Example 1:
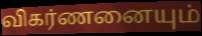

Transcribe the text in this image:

விகர்ணனையும்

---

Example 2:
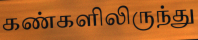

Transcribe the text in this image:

கண்களிலிருந்து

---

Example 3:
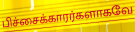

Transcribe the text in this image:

பிச்சைக்காரர்களாகவே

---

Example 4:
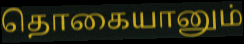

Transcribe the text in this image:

தொகையானும்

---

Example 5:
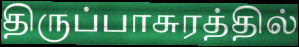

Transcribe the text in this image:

திருப்பாசுரத்தில்